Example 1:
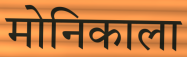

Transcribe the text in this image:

मोनिकाला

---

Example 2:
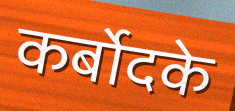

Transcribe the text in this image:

कर्बोदके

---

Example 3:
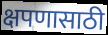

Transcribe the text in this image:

क्षपणासाठी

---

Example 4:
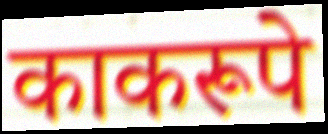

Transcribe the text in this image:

काकरूपे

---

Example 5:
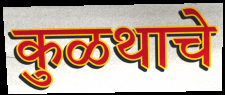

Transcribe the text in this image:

कुळथाचे